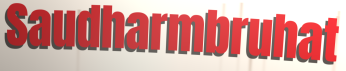
Saudharmbruhat